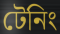
টেনিং